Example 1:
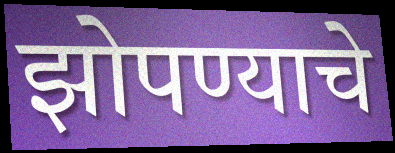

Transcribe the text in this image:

झोपण्याचे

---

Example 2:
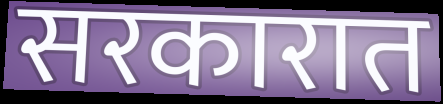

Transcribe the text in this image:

सरकारात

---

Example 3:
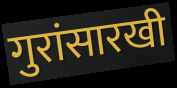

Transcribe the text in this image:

गुरांसारखी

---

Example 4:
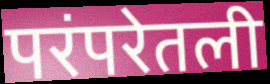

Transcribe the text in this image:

परंपरेतली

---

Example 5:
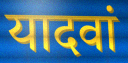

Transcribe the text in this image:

यादवां